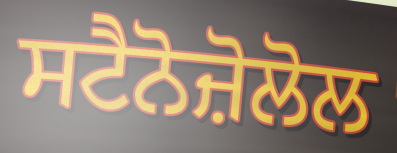
ਸਟੈਨੋਜ਼ੋਲੋਲ